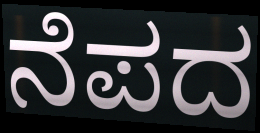
ನೆಪದ